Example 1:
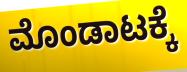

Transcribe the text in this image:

ಮೊಂಡಾಟಕ್ಕೆ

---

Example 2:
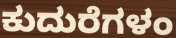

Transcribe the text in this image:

ಕುದುರೆಗಳಂ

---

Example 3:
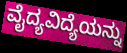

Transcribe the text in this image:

ವೈದ್ಯವಿದ್ಯೆಯನ್ನು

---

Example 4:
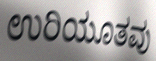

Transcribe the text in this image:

ಉರಿಯೂತವು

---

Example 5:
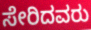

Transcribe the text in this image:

ಸೇರಿದವರು